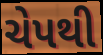
ચેપથી